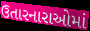
ઉતારનારાઓમાં